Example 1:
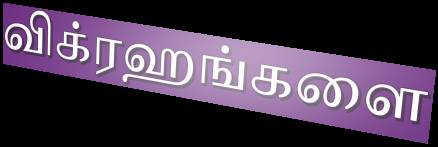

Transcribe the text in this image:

விக்ரஹங்களை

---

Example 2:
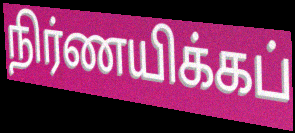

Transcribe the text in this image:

நிர்ணயிக்கப்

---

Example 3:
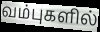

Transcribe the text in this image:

வம்புகளில்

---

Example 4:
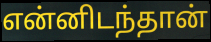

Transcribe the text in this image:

என்னிடந்தான்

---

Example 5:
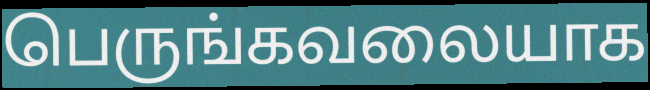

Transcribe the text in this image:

பெருங்கவலையாக